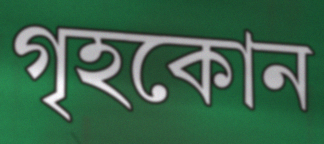
গৃহকোন